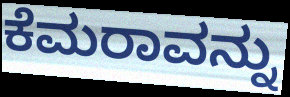
ಕೆಮರಾವನ್ನು